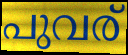
പുവര്